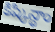
కిష్కిన్ధాం